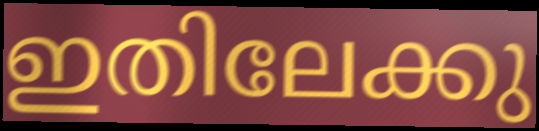
ഇതിലേക്കു